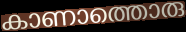
കാണാത്തൊരു